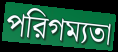
পরিগম্যতা